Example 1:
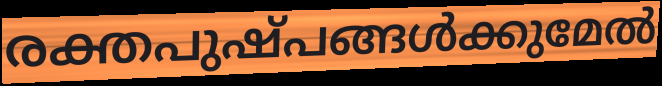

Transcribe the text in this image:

രക്തപുഷ്പങ്ങൾക്കുമേൽ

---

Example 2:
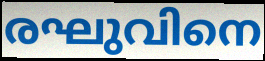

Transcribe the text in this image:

രഘുവിനെ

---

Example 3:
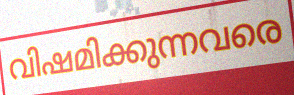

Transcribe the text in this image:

വിഷമിക്കുന്നവരെ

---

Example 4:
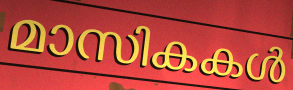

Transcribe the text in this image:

മാസികകൾ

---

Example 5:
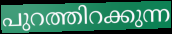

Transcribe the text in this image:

പുറത്തിറക്കുന്ന